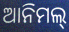
ଆନିମଲ୍